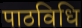
पाठविधि